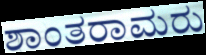
ಶಾಂತರಾಮರು